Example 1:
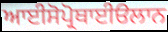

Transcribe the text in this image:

ਆਈਸੋਪ੍ਰੋਥਾਈੳਲਾਨ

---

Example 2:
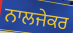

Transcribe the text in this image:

ਨਾਲਜੇਕਰ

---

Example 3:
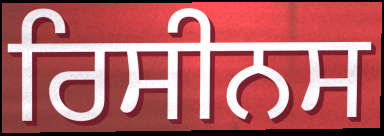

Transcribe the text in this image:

ਰਿਸੀਨਸ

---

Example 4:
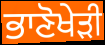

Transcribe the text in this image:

ਭਾਣੋਖੇੜੀ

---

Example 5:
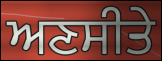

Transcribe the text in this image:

ਅਣਸੀਤੇ